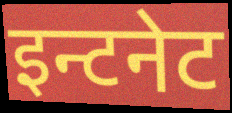
इन्टनेट